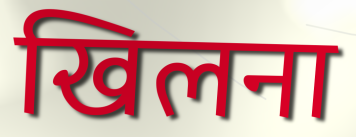
खिलना